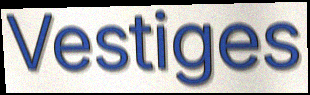
Vestiges